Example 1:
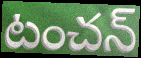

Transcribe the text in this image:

టంచన్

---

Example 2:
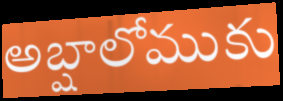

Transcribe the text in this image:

అబ్షాలోముకు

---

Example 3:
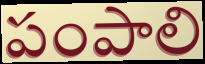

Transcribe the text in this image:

పంపాలి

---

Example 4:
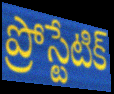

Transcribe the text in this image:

ప్రోస్టేటిక్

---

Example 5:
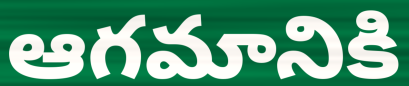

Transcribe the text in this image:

ఆగమానికి